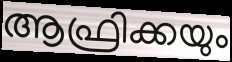
ആഫ്രിക്കയും